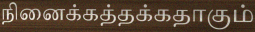
நினைக்கத்தக்கதாகும்